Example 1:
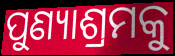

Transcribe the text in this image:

ପୁଣ୍ୟାଶ୍ରମକୁ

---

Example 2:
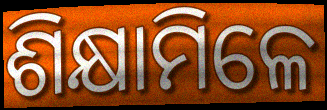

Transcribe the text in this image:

ଶିକ୍ଷାମିଳେ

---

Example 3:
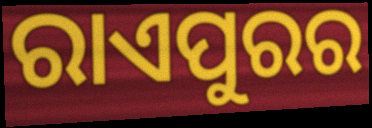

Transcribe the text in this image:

ରାଏପୁରର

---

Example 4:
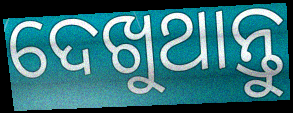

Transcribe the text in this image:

ଦେଖୁଥାନ୍ତୁ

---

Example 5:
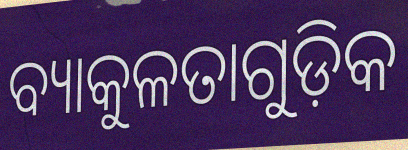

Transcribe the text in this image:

ବ୍ୟାକୁଳତାଗୁଡ଼ିକ